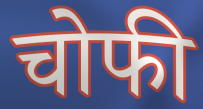
चोफी